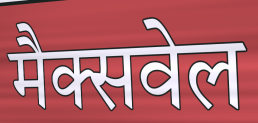
मैक्‍सवेल